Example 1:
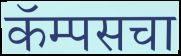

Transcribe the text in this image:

कॅम्पसचा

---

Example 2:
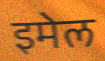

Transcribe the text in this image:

इमेल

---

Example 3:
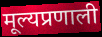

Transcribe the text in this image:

मूल्यप्रणाली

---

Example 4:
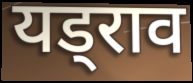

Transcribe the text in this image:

यड्राव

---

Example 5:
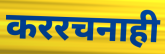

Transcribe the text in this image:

कररचनाही